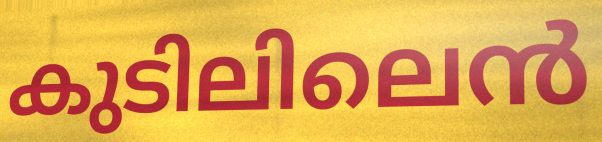
കുടിലിലെൻ